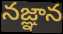
నజ్ఞాన